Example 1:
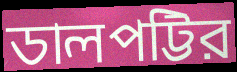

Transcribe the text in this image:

ডালপট্টির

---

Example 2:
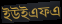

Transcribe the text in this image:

ইউইএফএ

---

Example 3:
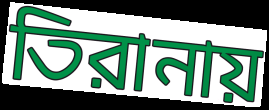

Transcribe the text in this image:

তিরানায়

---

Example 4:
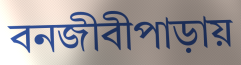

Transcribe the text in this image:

বনজীবীপাড়ায়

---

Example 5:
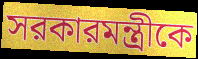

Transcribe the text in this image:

সরকারমন্ত্রীকে